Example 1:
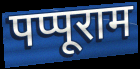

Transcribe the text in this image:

पप्पूराम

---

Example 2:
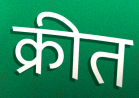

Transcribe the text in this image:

क्रीत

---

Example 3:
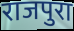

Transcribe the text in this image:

राजपुरा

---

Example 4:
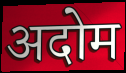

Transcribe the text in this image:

अदोम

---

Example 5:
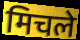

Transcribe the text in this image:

मिचले